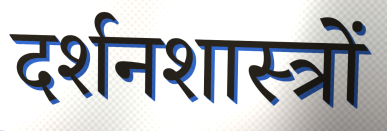
दर्शनशास्त्रों